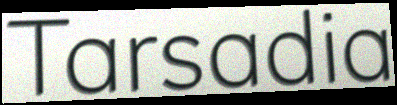
Tarsadia